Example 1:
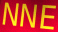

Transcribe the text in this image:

NNE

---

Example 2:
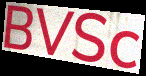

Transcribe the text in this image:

BVSc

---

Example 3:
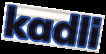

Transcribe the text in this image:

kadli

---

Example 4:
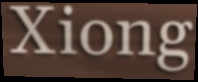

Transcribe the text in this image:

Xiong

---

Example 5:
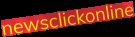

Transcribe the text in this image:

newsclickonline